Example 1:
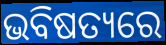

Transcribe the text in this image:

ଭବିଷତ୍ୟରେ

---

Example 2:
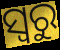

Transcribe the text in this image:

ସ୍ୱରୁ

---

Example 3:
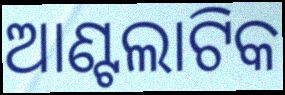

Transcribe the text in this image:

ଆଣ୍ଟଲାଟିକ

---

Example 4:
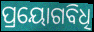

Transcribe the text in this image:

ପ୍ରୟୋଗବିଧି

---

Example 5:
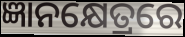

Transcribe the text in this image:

ଜ୍ଞାନକ୍ଷେତ୍ରରେ